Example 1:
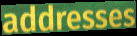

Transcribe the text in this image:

addresses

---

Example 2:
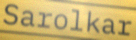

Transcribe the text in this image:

Sarolkar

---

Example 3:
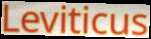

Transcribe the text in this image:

Leviticus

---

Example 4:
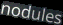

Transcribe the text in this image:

nodules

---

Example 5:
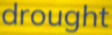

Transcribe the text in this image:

drought